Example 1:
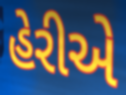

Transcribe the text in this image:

હેરીએ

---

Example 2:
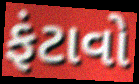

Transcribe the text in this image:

ફંટાવો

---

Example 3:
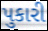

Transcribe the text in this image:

પુકારી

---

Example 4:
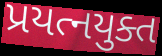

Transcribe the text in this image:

પ્રયત્નયુક્ત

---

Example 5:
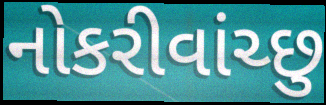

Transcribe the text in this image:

નોકરીવાંચ્છુ